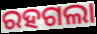
ରହଗଲା